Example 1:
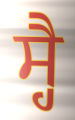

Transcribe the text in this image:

ਸ੍ਹੈ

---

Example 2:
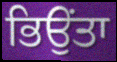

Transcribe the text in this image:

ਭਿਉਂਤਾ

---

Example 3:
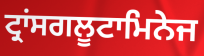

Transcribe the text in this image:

ਟ੍ਰਾਂਸਗਲੂਟਾਮਿਨੇਜ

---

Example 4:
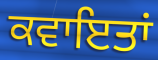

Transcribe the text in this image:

ਕਵਾਇਤਾਂ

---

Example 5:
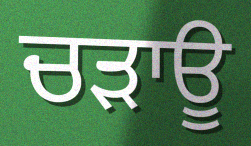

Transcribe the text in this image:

ਚੜਾਊ